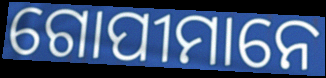
ଗୋପୀମାନେ